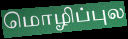
மொழிப்புல